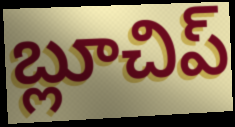
బ్లూచిప్